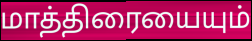
மாத்திரையையும்